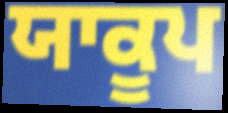
ਯਾਕੂਪ